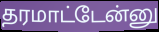
தரமாட்டேன்னு